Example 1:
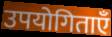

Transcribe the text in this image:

उपयोगिताएँ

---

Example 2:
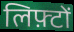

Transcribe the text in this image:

लिफ़्टों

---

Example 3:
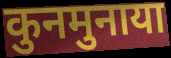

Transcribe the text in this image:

कुनमुनाया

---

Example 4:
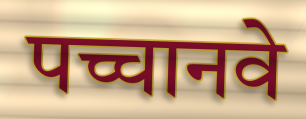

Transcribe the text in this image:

पच्चानवे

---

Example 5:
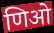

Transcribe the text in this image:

णिओ